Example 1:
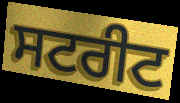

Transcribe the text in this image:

ਸਟਰੀਟ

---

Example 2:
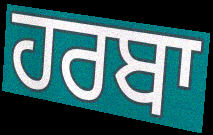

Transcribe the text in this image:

ਹਰਬਾ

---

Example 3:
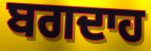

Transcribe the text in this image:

ਬਗਦਾਹ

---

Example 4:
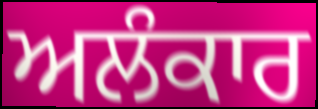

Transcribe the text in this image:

ਅਲੰਕਾਰ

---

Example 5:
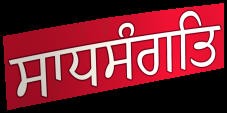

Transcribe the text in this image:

ਸਾਧਸੰਗਤਿ